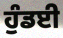
ਹੁੰਡਈ